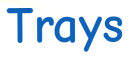
Trays